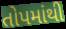
તોપમાંથી